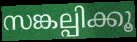
സങ്കല്പിക്കൂ